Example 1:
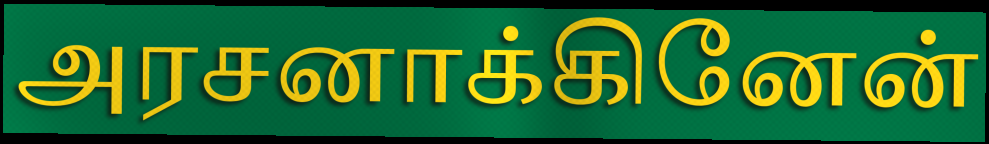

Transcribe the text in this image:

அரசனாக்கினேன்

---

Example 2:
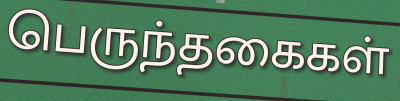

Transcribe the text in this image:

பெருந்தகைகள்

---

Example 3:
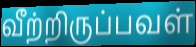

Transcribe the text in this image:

வீற்றிருப்பவள்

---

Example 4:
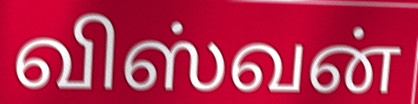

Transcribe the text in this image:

விஸ்வன்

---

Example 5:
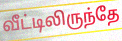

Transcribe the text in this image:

வீட்டிலிருந்தே